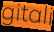
gitali